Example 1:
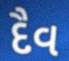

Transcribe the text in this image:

દૈવ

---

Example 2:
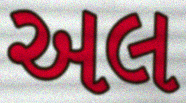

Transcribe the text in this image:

અલ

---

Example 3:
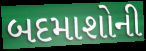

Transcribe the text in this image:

બદમાશોની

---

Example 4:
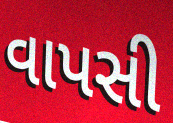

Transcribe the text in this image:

વાપસી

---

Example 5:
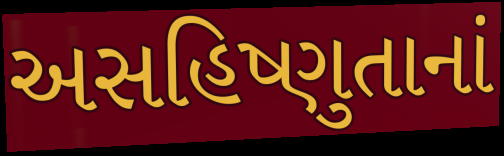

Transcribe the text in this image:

અસહિષ્ણુતાનાં